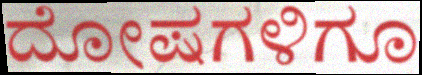
ದೋಷಗಳಿಗೂ